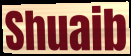
Shuaib